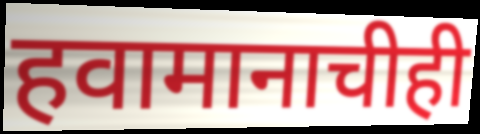
हवामानाचीही